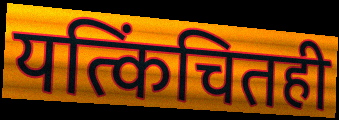
यत्किंचितही